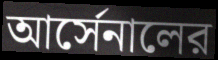
আর্সেনালের